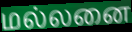
மல்லனை